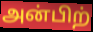
அன்பிற்